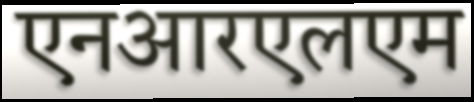
एनआरएलएम